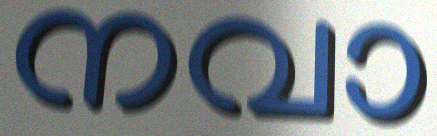
നവാ